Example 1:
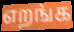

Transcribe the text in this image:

எறங்க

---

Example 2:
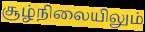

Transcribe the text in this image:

சூழ்நிலையிலும்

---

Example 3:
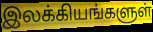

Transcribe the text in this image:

இலக்கியங்களுள்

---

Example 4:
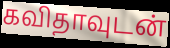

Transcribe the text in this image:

கவிதாவுடன்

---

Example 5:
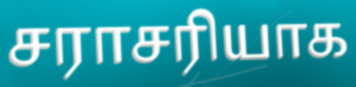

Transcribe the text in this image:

சராசரியாக